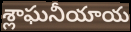
శ్లాఘనీయాయ